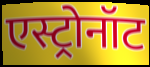
एस्ट्रोनॉट